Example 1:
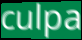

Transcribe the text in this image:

culpa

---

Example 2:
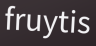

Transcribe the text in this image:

fruytis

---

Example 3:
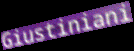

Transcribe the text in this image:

Giustiniani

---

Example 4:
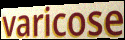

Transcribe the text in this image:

varicose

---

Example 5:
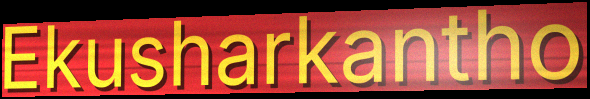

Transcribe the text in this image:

Ekusharkantho